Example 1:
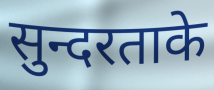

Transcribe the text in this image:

सुन्दरताके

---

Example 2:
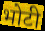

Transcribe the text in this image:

भोटी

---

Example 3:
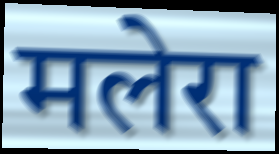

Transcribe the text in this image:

मलेरा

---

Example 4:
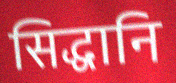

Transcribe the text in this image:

सिद्धानि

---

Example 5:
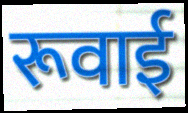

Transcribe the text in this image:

रूवाई